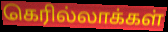
கெரில்லாக்கள்